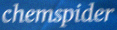
chemspider